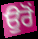
ਉਰੋਂ